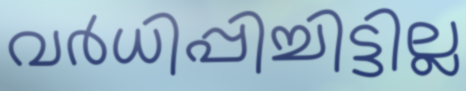
വർധിപ്പിച്ചിട്ടില്ല